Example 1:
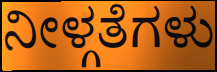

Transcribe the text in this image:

ನೀಳ್ಗತೆಗಳು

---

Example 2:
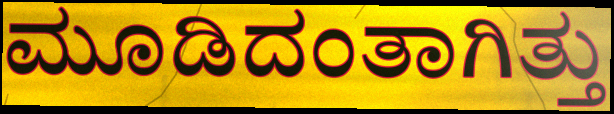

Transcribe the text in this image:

ಮೂಡಿದಂತಾಗಿತ್ತು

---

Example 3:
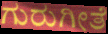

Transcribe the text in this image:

ಗುರುಗೀತೆ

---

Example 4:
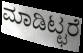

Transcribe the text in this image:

ಮಾಡಿಟ್ಟರೆ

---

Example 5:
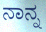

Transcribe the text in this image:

ನಾನ್ನ